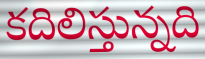
కదిలిస్తున్నది